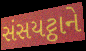
સંસયટ્ઠાને